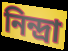
নিন্দ্ৰা